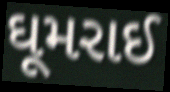
ઘૂમરાઈ